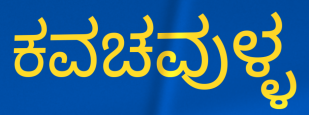
ಕವಚವುಳ್ಳ